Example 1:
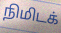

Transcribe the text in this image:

நிமிடக்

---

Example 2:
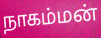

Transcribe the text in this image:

நாகம்மன்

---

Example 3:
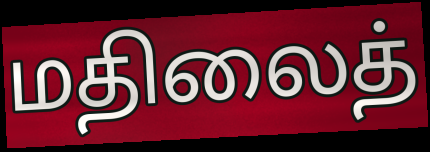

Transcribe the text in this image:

மதிலைத்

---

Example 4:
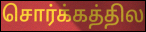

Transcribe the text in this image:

சொர்க்கத்தில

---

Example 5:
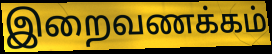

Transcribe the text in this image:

இறைவணக்கம்